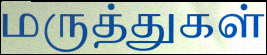
மருத்துகள்